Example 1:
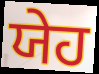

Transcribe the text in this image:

ਯੇਹ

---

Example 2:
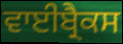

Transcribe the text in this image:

ਵਾਈਬ੍ਰੈਕਸ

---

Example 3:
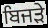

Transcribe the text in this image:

ਬਿਜੜੇ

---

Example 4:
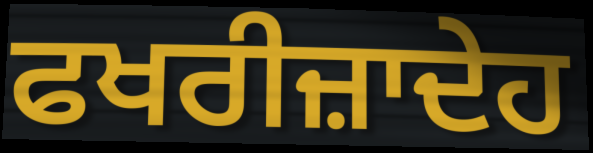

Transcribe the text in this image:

ਫਖਰੀਜ਼ਾਦੇਹ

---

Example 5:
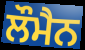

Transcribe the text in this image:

ਲੌਮੈਨ